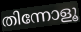
തിന്നോളൂ